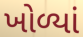
ખોળ્યાં